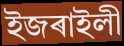
ইজৰাইলী